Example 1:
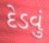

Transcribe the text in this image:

દેડવું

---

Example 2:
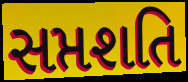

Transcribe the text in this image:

સપ્તશતિ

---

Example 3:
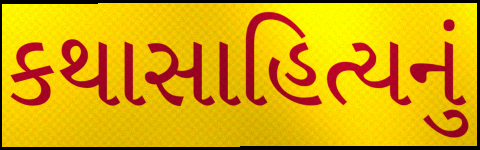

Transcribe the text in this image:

કથાસાહિત્યનું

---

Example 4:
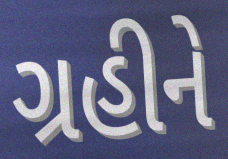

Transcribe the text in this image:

ગ્રહીને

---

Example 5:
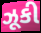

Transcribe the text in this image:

ઝૂકી